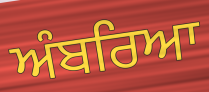
ਅੰਬਰਿਆ